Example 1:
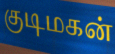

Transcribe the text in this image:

குடிமகன்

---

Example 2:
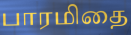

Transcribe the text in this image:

பாரமிதை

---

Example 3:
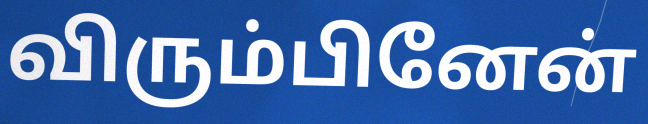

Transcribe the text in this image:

விரும்பினேன்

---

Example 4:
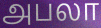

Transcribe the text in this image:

அபலா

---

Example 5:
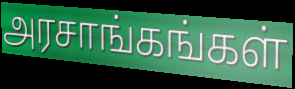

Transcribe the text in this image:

அரசாங்கங்கள்